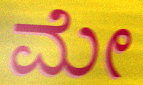
ಮೇ